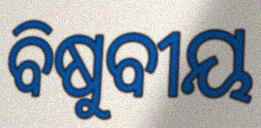
ବିଷୁବୀୟ